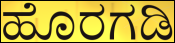
ಹೊರಗಡಿ